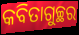
କବିତାଗୁଚ୍ଛର